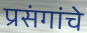
प्रसंगांचे